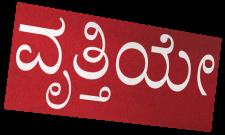
ವೃತ್ತಿಯೇ